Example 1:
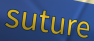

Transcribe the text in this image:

suture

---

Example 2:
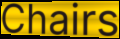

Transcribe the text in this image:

Chairs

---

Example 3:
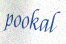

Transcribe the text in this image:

pookal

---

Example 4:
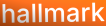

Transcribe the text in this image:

hallmark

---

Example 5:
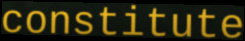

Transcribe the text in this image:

constitute